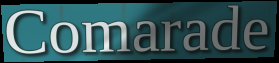
Comarade